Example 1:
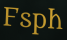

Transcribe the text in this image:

Fsph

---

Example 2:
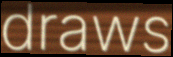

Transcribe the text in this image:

draws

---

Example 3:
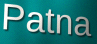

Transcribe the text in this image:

Patna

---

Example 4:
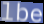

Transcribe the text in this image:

lbe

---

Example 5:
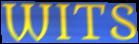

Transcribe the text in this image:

WITS